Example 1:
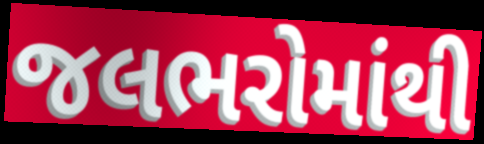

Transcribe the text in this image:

જલભરોમાંથી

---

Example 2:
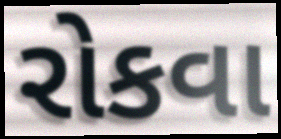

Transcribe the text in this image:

રોકવા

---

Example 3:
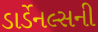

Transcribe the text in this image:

ડાર્ડેનલ્સની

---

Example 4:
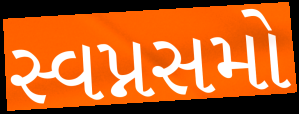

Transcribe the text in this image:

સ્વપ્નસમો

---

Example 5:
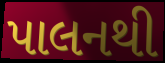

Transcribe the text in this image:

પાલનથી